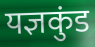
यज्ञकुंड